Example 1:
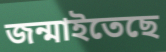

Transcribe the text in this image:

জন্মাইতেছে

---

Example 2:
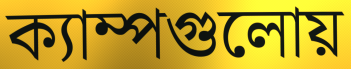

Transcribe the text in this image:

ক্যাম্পগুলোয়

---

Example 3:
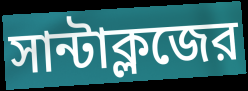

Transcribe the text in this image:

সান্টাক্লজের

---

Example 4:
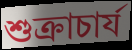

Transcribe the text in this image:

শুক্রাচার্য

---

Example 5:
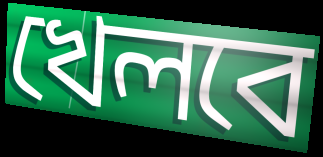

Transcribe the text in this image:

খেলবে